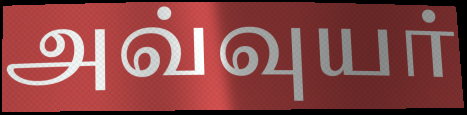
அவ்வுயர்